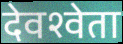
देवश्वेता